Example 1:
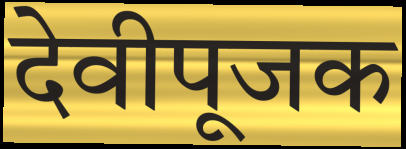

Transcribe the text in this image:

देवीपूजक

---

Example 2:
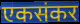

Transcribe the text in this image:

एकसंकर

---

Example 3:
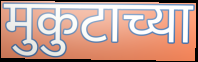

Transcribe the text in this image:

मुकुटाच्या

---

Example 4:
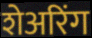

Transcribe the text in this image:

शेअरिंग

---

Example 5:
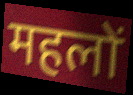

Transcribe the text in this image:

महलों